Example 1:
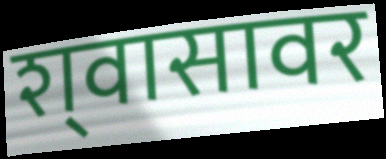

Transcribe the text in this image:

श्वासावर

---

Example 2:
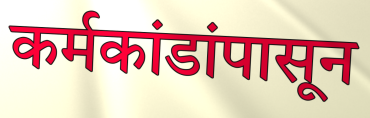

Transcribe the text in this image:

कर्मकांडांपासून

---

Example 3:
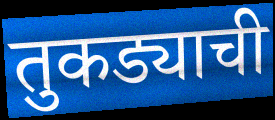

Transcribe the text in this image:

तुकड्याची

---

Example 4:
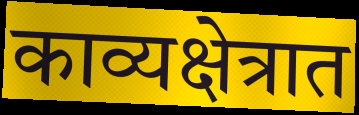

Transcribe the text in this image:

काव्यक्षेत्रात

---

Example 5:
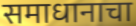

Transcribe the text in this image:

समाधानाचा